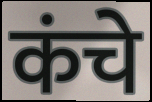
कंचे